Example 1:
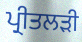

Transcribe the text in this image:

ਪ੍ਰੀਤਲੜੀ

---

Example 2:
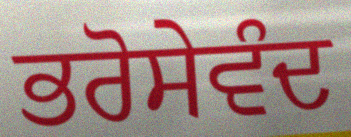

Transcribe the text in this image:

ਭਰੋਸੇਵੰਦ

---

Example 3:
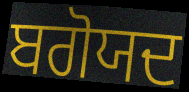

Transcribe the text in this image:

ਬਗੋਯਦ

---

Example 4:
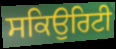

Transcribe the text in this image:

ਸਕਿਉਰਿਟੀ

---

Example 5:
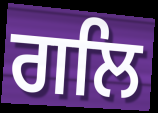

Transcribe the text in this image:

ਗਲਿ